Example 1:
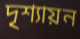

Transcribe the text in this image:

দৃশ্যায়ন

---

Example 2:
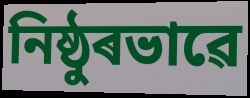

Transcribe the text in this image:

নিষ্ঠুৰভাৱে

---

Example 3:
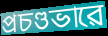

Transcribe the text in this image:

প্ৰচণ্ডভাৱে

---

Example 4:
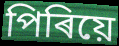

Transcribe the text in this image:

পিৰিয়ে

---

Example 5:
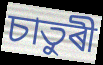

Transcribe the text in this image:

চাতুৰী